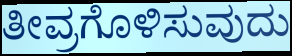
ತೀವ್ರಗೊಳಿಸುವುದು